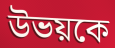
উভয়কে